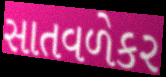
સાતવળેકર